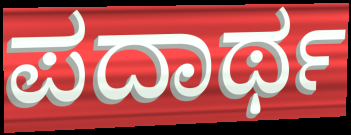
ಪದಾರ್ಥ